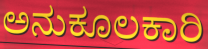
ಅನುಕೂಲಕಾರಿ